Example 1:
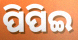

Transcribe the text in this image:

ପିପିଇ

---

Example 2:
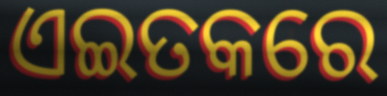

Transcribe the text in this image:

ଏଇତକରେ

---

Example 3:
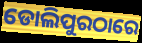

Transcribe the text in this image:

ଡୋଲିପୁରଠାରେ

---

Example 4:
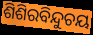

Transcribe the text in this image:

ଶିଶିରବିନ୍ଦୁଚୟ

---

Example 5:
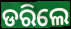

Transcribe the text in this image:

ଡରିଲେ